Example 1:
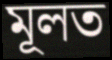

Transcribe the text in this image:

মূলত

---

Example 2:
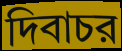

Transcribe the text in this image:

দিবাচর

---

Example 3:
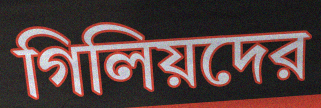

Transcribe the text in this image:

গিলিয়দের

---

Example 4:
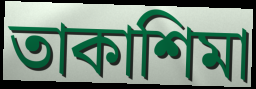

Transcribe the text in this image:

তাকাশিমা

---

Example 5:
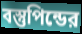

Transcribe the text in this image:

বস্তুপিন্ডের